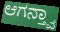
ಆಗನ್ತ್ವಾ